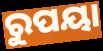
ରୁପୟା